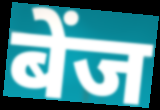
बेंज